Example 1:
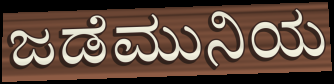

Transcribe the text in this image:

ಜಡೆಮುನಿಯ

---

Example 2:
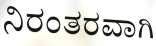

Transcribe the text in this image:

ನಿರಂತರವಾಗಿ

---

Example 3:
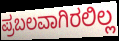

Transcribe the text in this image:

ಪ್ರಬಲವಾಗಿರಲಿಲ್ಲ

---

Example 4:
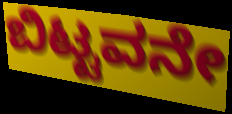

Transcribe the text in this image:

ಬಿಟ್ಟವನೇ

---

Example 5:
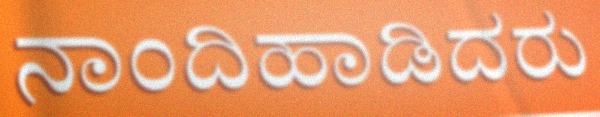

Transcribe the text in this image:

ನಾಂದಿಹಾಡಿದರು